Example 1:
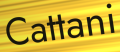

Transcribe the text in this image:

Cattani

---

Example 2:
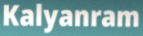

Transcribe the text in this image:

Kalyanram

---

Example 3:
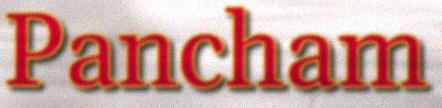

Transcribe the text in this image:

Pancham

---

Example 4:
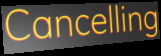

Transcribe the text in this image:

Cancelling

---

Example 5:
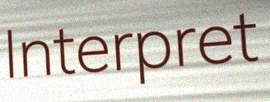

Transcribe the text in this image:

Interpret